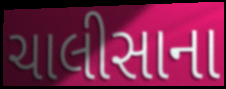
ચાલીસાના